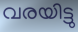
വരയിട്ടു